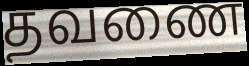
தவணை